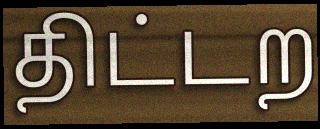
திட்டற